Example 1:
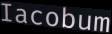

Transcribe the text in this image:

Iacobum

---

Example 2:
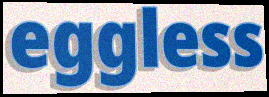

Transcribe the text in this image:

eggless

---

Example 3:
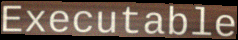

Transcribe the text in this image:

Executable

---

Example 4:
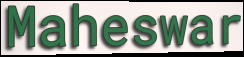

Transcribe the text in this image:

Maheswar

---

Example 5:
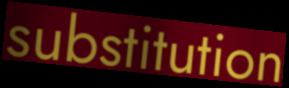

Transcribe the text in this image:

substitution